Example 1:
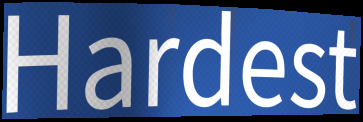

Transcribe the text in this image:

Hardest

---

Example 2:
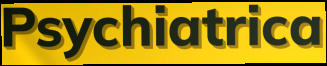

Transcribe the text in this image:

Psychiatrica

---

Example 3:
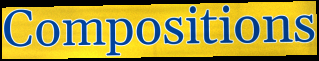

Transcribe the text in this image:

Compositions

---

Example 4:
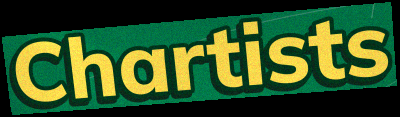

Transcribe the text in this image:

Chartists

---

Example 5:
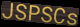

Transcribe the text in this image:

JSPSCs